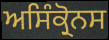
ਅਸਿੰਕ੍ਰੋਨਸ